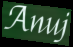
Anuj